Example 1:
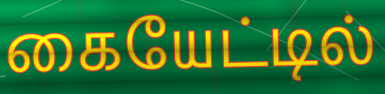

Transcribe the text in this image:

கையேட்டில்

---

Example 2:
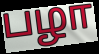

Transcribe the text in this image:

பழா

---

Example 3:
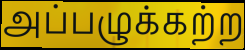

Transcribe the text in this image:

அப்பழுக்கற்ற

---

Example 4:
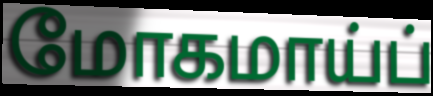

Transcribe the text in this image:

மோகமாய்ப்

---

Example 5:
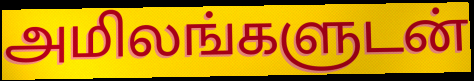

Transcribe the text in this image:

அமிலங்களுடன்